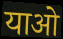
याओ